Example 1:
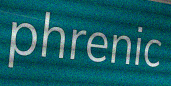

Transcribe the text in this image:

phrenic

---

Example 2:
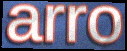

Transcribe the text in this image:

arro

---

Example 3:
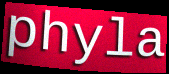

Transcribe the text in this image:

phyla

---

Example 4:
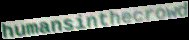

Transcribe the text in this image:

humansinthecrowd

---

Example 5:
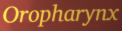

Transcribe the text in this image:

Oropharynx